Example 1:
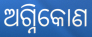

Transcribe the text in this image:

ଅଗ୍ନିକୋଣ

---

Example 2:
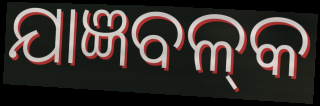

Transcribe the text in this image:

ଯାଜ୍ଞବଳ୍‍କ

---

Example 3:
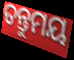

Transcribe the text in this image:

ତନ୍ତୁମୟ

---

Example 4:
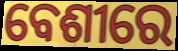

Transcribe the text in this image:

ବେଶୀରେ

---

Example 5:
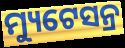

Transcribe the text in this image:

ମ୍ୟୁଟେସନ୍ର